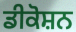
ਡੀਕੋਸ਼ਨ